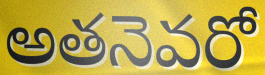
అతనెవరో